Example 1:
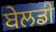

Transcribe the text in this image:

ਬੇਲਡੀ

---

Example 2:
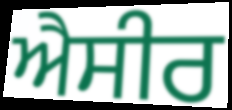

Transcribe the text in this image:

ਐਸੀਰ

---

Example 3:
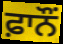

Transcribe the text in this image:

ਫ਼ਾਨੌਂ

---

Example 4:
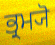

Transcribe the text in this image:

ਭ੍ਰਮ੍ਯੋ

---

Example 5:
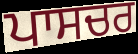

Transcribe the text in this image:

ਪਾਸਚਰ